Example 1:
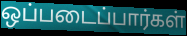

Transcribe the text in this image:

ஒப்படைப்பார்கள்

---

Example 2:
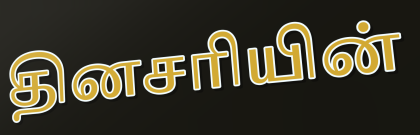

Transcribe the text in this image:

தினசரியின்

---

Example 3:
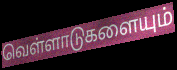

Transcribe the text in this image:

வெள்ளாடுகளையும்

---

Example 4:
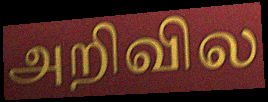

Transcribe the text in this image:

அறிவில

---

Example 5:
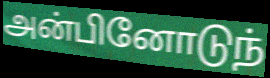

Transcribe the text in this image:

அன்பினோடுந்